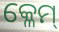
କ୍ଳେମ୍